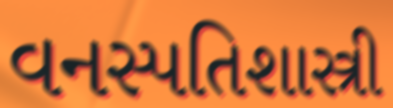
વનસ્પતિશાસ્ત્રી